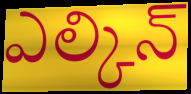
ఎల్కిన్